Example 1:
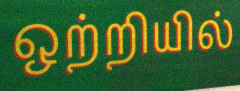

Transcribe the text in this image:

ஒற்றியில்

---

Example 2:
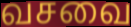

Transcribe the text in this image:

வசவை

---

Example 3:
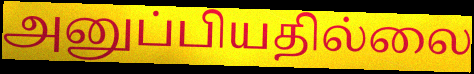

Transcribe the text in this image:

அனுப்பியதில்லை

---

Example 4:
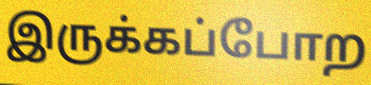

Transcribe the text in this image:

இருக்கப்போற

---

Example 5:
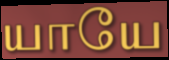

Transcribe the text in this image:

யாயே